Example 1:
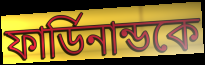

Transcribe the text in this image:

ফার্ডিনান্ডকে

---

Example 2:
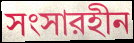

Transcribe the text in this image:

সংসারহীন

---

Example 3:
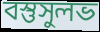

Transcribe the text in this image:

বস্তুসুলভ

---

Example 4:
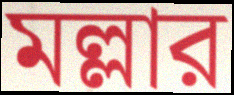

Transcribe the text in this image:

মল্লার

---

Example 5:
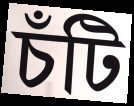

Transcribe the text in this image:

চঁটি